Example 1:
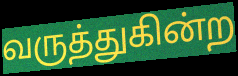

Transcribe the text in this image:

வருத்துகின்ற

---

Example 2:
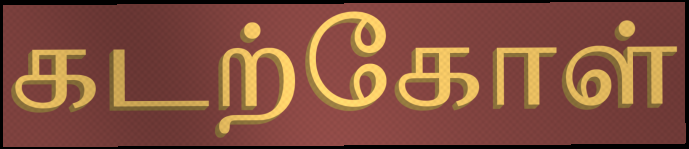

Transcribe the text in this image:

கடற்கோள்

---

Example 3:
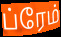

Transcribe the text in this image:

ப்ரேம்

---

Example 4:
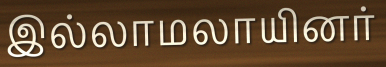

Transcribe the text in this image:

இல்லாமலாயினர்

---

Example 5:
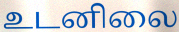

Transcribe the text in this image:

உடனிலை